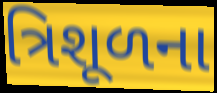
ત્રિશૂળના